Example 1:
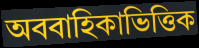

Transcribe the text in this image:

অববাহিকাভিত্তিক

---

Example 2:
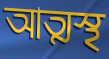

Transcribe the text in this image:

আত্মস্থ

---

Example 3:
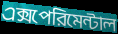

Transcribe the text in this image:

এক্সপেরিমেন্টাল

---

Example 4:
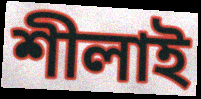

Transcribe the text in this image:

শীলাই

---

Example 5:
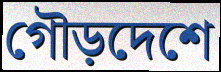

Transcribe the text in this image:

গৌড়দেশে